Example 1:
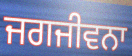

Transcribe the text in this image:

ਜਗਜੀਵਨਾ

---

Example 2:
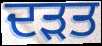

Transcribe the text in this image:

ਦੜਤ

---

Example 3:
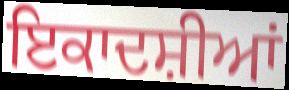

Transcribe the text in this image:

ਇਕਾਦਸ਼ੀਆਂ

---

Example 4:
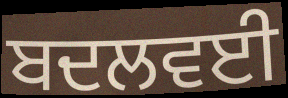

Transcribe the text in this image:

ਬਦਲਵਈ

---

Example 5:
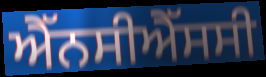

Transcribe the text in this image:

ਐੱਨਸੀਐੱਸਸੀ